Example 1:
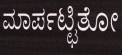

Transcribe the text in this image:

ಮಾರ್ಪಟ್ಟಿತೋ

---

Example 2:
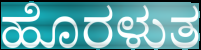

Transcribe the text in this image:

ಹೊರಳುತ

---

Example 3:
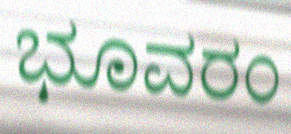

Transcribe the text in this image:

ಭೂವರಂ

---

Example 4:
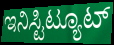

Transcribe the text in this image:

ಇನಿಸ್ಟಿಟ್ಯೂಟ್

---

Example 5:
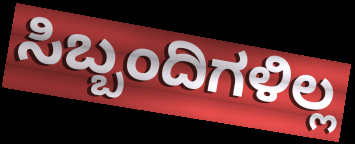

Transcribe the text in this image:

ಸಿಬ್ಬಂದಿಗಳಿಲ್ಲ